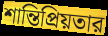
শান্তিপ্রিয়তার